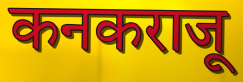
कनकराजू